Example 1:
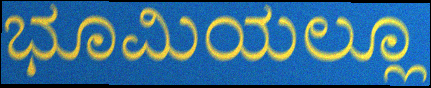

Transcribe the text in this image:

ಭೂಮಿಯಲ್ಲೂ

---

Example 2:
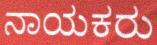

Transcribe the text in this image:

ನಾಯಕರು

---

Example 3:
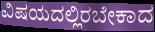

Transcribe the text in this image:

ವಿಷಯದಲ್ಲಿರಬೇಕಾದ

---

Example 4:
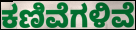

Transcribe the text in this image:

ಕಣಿವೆಗಳಿವೆ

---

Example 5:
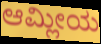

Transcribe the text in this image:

ಆಮ್ಲೀಯ